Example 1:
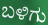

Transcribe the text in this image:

ಬಳಿಗು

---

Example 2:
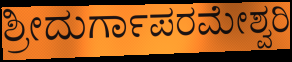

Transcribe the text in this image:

ಶ್ರೀದುರ್ಗಾಪರಮೇಶ್ವರಿ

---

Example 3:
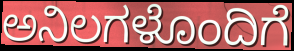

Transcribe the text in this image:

ಅನಿಲಗಳೊಂದಿಗೆ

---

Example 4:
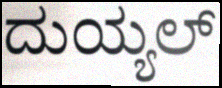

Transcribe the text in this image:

ದುಯ್ಯಲ್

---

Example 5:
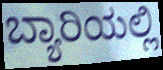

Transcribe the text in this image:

ಬ್ಯಾರಿಯಲ್ಲಿ